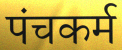
पंचकर्म